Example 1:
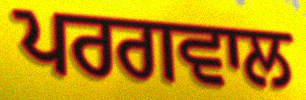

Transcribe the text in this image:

ਪਰਗਵਾਲ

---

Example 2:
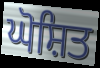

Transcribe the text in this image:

ਘੋਸ਼ਿਤ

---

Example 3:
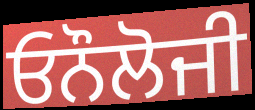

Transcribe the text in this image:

ਓਨੌਲੋਜੀ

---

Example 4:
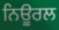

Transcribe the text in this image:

ਨਿਊਰਲ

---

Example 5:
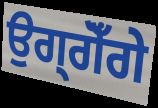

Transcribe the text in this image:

ਉਗ੍ਗੋਁਗੇ